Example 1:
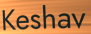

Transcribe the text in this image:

Keshav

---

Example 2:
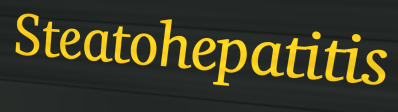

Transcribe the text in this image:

Steatohepatitis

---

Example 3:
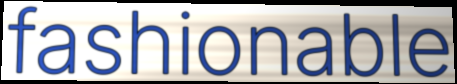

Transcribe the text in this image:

fashionable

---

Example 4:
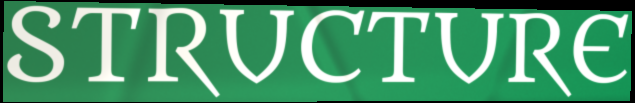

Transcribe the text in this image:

STRUCTURE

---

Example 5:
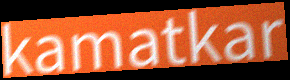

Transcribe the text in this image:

kamatkar